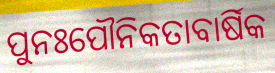
ପୁନଃପୌନିକତାବାର୍ଷିକ